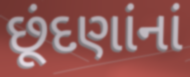
છૂંદણાંનાં